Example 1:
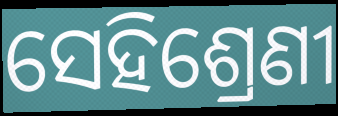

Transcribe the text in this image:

ସେହିଶ୍ରେଣୀ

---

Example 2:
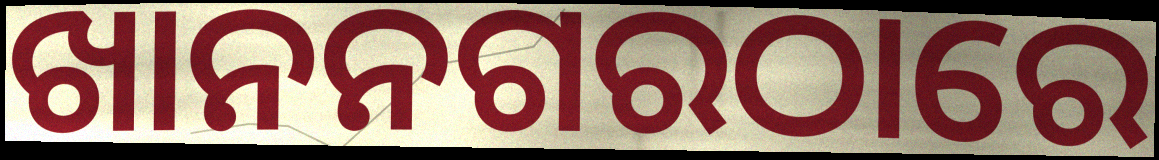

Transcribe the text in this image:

ଖାନନଗରଠାରେ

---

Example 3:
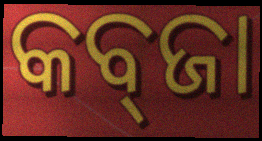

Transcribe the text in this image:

କବ୍‍ଜା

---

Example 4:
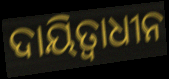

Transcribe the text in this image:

ଦାୟିତ୍ଵାଧୀନ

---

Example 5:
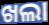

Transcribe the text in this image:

ଖଲା